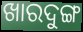
ଖାରଦୁଙ୍ଗ